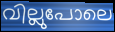
വില്ലുപോലെ